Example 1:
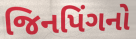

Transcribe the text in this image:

જિનપિંગનો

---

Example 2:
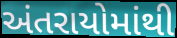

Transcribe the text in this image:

અંતરાયોમાંથી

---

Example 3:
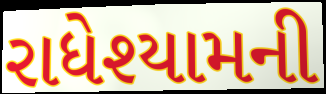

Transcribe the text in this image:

રાધેશ્યામની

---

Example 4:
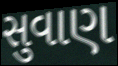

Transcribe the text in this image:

સુવાણ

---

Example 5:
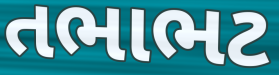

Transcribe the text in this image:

તભાભટ